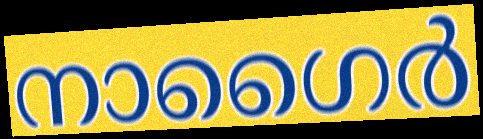
നാഗൈർ